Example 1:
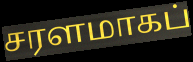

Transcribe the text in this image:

சரளமாகப்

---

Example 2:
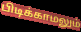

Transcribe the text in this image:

பிடிக்காமலும்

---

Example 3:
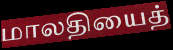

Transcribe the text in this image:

மாலதியைத்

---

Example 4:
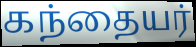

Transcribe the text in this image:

கந்தையர்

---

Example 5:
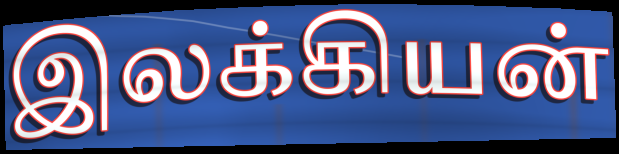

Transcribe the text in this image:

இலக்கியன்